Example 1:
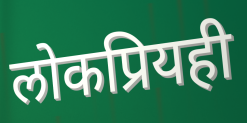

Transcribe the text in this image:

लोकप्रियही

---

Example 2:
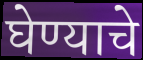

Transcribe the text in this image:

घेण्याचे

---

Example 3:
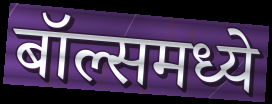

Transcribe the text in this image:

बॉल्समध्ये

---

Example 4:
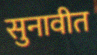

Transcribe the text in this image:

सुनावीत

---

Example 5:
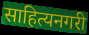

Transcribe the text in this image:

साहित्यनगरी